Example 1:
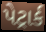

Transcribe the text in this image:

પેટ્રાર્ક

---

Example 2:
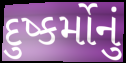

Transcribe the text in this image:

દુષ્કર્મોનું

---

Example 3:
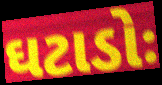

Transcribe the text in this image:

ઘટાડોઃ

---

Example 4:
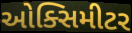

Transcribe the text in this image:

ઓક્સિમીટર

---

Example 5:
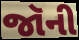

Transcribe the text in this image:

જૉની